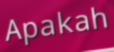
Apakah